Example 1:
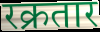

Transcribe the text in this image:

रक्रतार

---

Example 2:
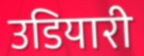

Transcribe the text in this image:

उडियारी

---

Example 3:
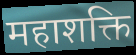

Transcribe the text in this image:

महाशक्ति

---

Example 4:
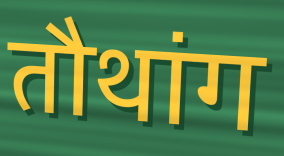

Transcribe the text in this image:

तौथांग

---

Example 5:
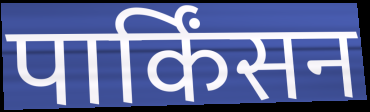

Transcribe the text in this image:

पार्किंसन